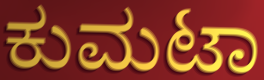
ಕುಮಟಾ